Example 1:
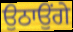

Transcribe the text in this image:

ਉਠਾਉਂਗੇ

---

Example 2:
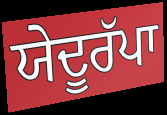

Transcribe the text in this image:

ਯੇਦੂਰੱਪਾ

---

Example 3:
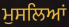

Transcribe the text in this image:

ਮੁਸਲਿਆਂ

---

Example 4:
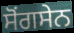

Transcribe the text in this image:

ਸੋਂਗਸੇਨ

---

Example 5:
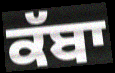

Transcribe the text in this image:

ਕੱਬਾ